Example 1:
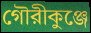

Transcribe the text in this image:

গৌরীকুঞ্জে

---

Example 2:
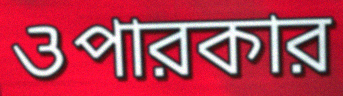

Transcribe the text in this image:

ওপারকার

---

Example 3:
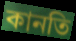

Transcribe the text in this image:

কানতি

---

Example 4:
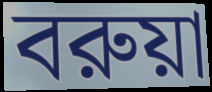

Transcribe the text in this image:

বরুয়া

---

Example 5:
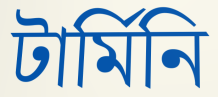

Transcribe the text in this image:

টার্মিনি